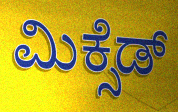
ಮಿಕ್ಸೆಡ್